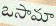
ఒసామా